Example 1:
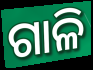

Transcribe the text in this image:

ଗାଳି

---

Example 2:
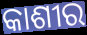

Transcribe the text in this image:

କାଶୀର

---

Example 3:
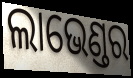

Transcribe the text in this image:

ଲାଭେଣ୍ଡର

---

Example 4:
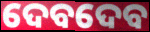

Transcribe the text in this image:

ଦେବଦେବ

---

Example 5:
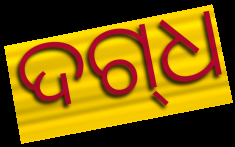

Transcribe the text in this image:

ଦଗ୍‍ଧ